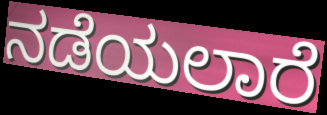
ನಡೆಯಲಾರೆ